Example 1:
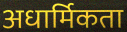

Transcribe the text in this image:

अधार्मिकता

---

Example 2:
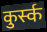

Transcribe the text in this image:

कुर्स्क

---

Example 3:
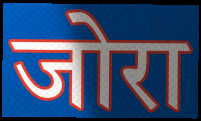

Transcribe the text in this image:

जोरा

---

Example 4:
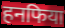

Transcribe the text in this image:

हनफिया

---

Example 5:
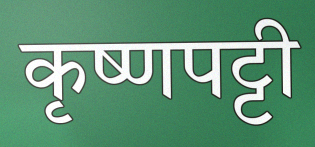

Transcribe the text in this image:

कृष्णपट्टी